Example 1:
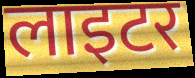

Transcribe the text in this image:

लाइटर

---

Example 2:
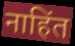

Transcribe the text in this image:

नाहिंत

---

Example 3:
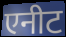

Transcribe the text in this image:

एनीट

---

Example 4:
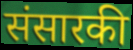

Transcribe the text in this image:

संसारकी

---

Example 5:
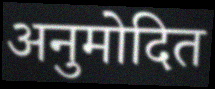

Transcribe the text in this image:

अनुमोदित